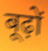
बूढ़ों